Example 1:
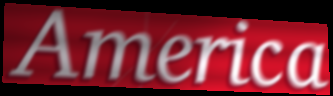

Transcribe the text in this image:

America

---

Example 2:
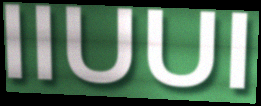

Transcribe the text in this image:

IIUUI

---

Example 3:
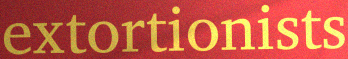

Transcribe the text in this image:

extortionists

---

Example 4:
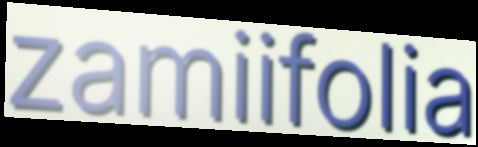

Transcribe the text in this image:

zamiifolia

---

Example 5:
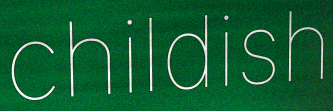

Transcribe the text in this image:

childish